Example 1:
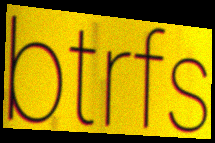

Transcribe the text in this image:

btrfs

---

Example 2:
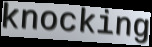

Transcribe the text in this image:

knocking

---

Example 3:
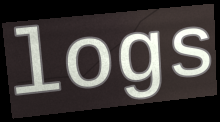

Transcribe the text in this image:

logs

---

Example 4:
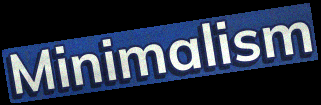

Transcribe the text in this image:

Minimalism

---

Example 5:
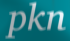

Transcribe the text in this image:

pkn